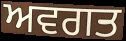
ਅਵਗਤ